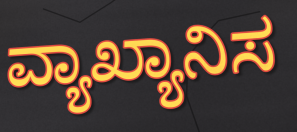
ವ್ಯಾಖ್ಯಾನಿಸ